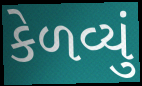
કેળવ્યું